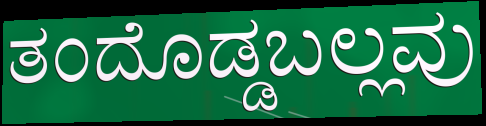
ತಂದೊಡ್ಡಬಲ್ಲವು